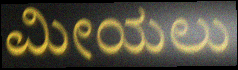
ಮೀಯಲು